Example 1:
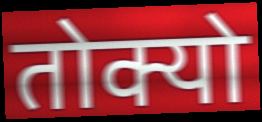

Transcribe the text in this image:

तोक्यो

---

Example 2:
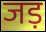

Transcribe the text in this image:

जड़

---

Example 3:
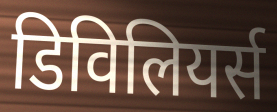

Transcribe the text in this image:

डिविलियर्स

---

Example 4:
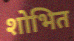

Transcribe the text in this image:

शोभित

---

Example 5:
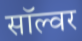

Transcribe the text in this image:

सॉल्वर